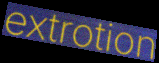
extrotion